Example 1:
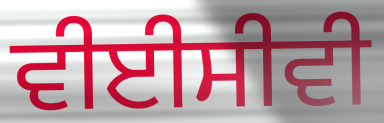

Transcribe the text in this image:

ਵੀਈਸੀਵੀ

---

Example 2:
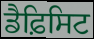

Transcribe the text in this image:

ਡੈਫ਼ਿਸਿਟ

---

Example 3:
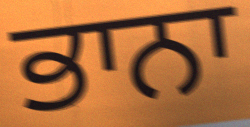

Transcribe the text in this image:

ਭਾਨਾ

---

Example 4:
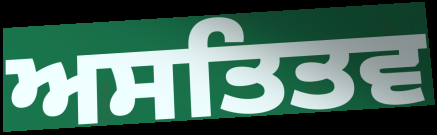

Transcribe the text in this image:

ਅਸਤਿਤਵ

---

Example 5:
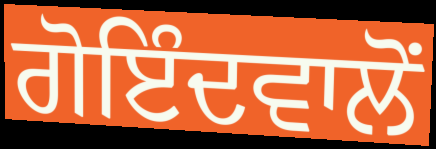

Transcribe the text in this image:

ਗੋਇੰਦਵਾਲੋਂ